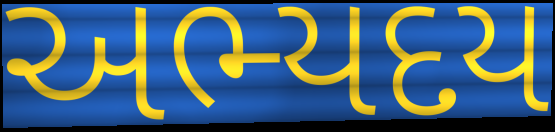
અભ્યદય